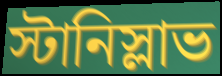
স্টানিস্লাভ